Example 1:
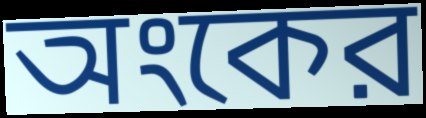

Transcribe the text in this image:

অংকের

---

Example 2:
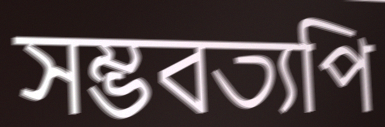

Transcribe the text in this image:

সম্ভবত্যপি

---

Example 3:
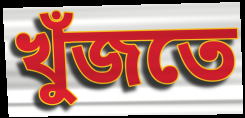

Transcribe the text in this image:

খুঁজতে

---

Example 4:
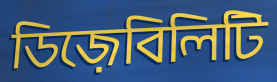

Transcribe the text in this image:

ডিজ়েবিলিটি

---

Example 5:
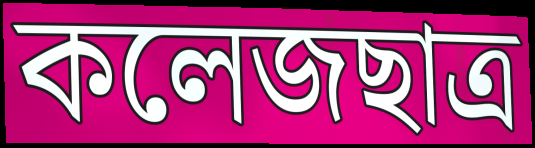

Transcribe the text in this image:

কলেজছাত্র